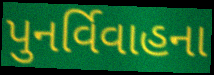
પુનર્વિવાહના